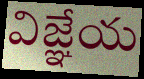
విజ్ఞేయ